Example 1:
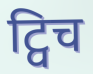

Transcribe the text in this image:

ट्विच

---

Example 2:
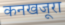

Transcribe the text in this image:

कनखजूरा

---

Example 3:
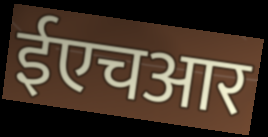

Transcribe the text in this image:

ईएचआर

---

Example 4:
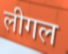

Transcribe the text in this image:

लीगल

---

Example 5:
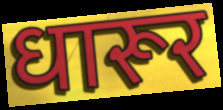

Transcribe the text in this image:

धारूर